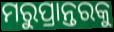
ମରୁପ୍ରାନ୍ତରକୁ